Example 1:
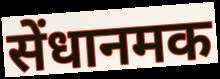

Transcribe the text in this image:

सेंधानमक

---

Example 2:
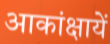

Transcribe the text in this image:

आकांक्षायें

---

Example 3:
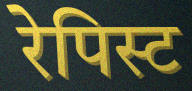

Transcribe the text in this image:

रेपिस्ट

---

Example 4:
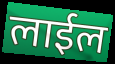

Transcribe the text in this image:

लाईल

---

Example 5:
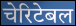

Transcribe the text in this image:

चेरिटेबल